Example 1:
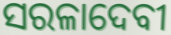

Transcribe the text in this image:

ସରଳାଦେବୀ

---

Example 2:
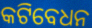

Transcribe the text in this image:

କଟିବେଧନ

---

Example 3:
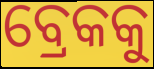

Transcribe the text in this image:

ବ୍ରେକକୁ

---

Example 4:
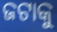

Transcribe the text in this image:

ଜଟାକୁ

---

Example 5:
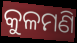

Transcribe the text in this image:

କୁଳମଣି